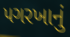
પગરખાનું